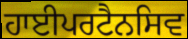
ਹਾਈਪਰਟੈਨਸਿਵ